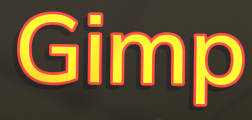
Gimp